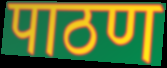
पाठण